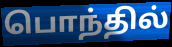
பொந்தில்